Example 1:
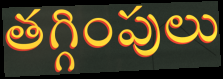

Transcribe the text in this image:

తగ్గింపులు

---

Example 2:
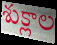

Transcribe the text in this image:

శుక్లాల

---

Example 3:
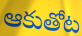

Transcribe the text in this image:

ఆకుతోట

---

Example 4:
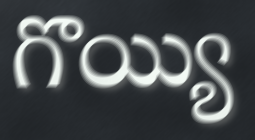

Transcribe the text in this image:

గొయ్యి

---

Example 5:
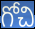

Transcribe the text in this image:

గోచి